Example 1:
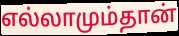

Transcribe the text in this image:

எல்லாமும்தான்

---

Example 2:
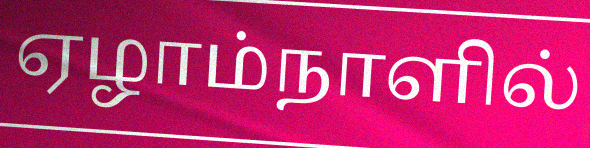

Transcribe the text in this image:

ஏழாம்நாளில்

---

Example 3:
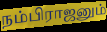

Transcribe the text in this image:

நம்பிராஜனும்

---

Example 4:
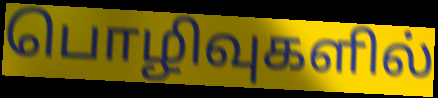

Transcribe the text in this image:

பொழிவுகளில்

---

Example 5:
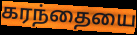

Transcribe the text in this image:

கரந்தையை